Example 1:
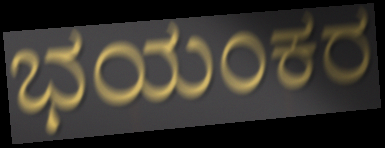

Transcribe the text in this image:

ಭಯಂಕರ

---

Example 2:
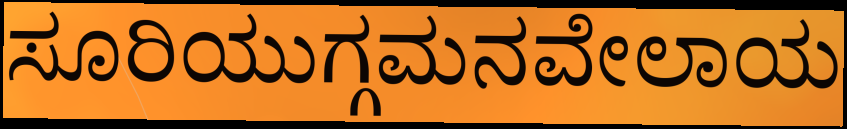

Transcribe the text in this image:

ಸೂರಿಯುಗ್ಗಮನವೇಲಾಯ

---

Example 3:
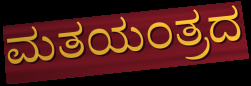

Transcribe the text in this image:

ಮತಯಂತ್ರದ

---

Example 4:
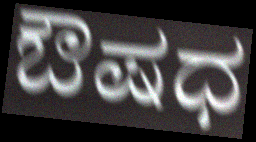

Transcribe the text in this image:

ಔಷಧ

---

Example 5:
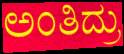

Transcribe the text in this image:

ಅಂತಿದ್ರು